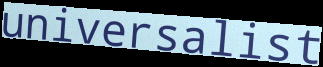
universalist